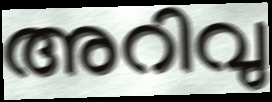
അറിവു